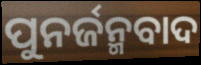
ପୁନର୍ଜନ୍ମବାଦ